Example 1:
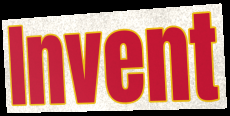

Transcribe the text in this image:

Invent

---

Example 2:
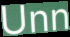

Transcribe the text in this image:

Unn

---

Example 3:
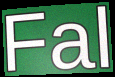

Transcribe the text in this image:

Fal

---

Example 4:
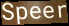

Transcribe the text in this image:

Speer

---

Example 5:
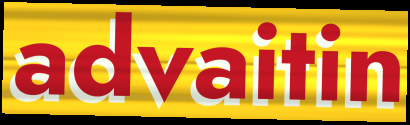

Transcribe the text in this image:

advaitin